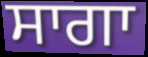
ਸਾਗਾ